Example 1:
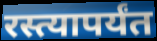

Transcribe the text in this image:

रस्त्यापर्यंत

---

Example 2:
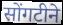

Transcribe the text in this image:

सोंगटीने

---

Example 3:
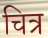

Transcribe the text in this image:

चित्र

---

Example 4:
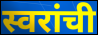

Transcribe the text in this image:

स्वरांची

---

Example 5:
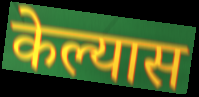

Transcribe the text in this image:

केल्यास